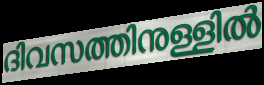
ദിവസത്തിനുള്ളിൽ